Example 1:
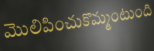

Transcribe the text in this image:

మొలిపించుకొమ్మంటుంది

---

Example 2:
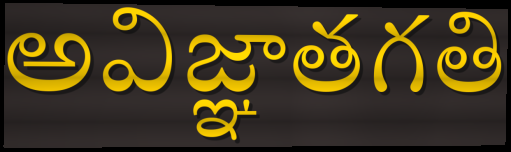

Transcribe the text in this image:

అవిజ్ఞాతగతి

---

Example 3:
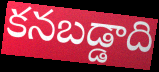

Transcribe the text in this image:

కనబడ్డాది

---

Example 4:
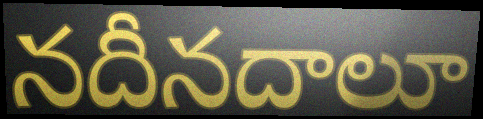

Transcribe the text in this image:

నదీనదాలూ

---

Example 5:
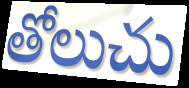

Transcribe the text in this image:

తోలుచు